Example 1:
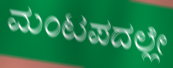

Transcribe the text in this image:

ಮಂಟಪದಲ್ಲೇ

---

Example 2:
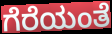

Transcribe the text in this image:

ಗೆರೆಯಂತೆ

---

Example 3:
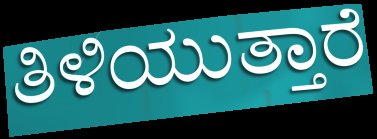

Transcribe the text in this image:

ತಿಳಿಯುತ್ತಾರೆ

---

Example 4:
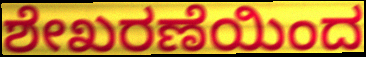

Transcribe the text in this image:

ಶೇಖರಣೆಯಿಂದ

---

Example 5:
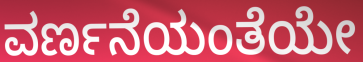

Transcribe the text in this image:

ವರ್ಣನೆಯಂತೆಯೇ